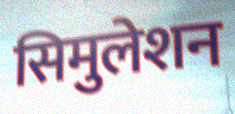
सिमुलेशन